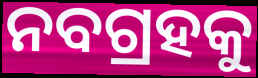
ନବଗ୍ରହକୁ